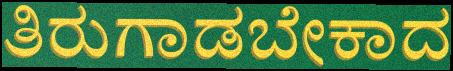
ತಿರುಗಾಡಬೇಕಾದ